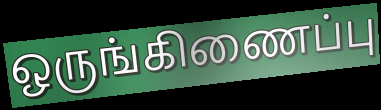
ஒருங்கிணைப்பு